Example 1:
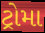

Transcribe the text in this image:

ટ્રોમા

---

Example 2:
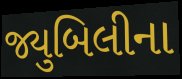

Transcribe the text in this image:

જ્યુબિલીના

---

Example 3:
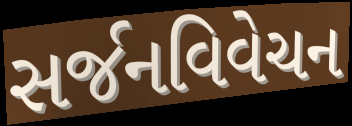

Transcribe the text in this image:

સર્જનવિવેચન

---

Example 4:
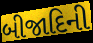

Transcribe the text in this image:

બીજાદિની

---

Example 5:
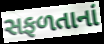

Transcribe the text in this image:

સફળતાનાં